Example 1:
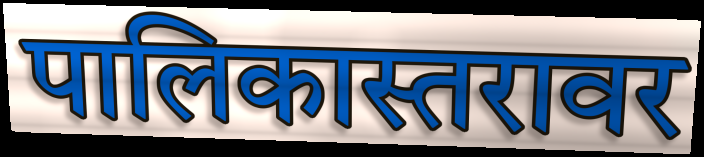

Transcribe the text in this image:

पालिकास्तरावर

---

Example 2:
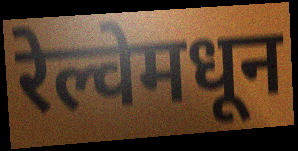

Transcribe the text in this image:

रेल्वेमधून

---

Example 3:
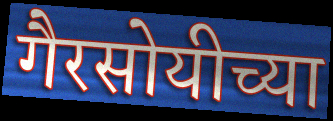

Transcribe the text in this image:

गैरसोयीच्या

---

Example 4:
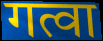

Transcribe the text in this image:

गत्वा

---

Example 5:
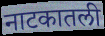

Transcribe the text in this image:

नाटकातली